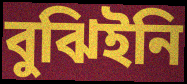
বুঝিইনি